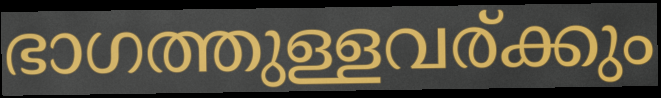
ഭാഗത്തുള്ളവര്ക്കും